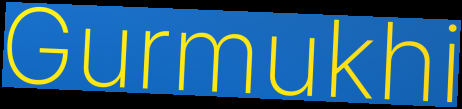
Gurmukhi